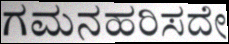
ಗಮನಹರಿಸದೇ